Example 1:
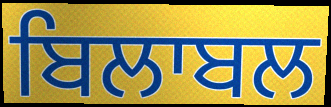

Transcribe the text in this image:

ਬਿਲਾਬਲ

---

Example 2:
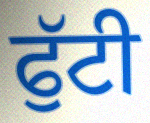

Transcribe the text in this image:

ਫੁੱਟੀ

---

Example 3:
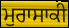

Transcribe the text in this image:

ਮੁਰਾਸਾਕੀ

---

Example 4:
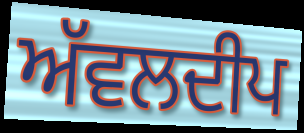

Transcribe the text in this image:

ਅੱਵਲਦੀਪ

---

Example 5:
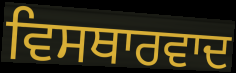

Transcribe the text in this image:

ਵਿਸਥਾਰਵਾਦ